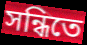
সন্ধিতে